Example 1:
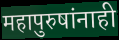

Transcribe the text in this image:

महापुरुषांनाही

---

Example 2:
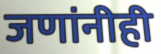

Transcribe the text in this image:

जणांनीही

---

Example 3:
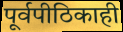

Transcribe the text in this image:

पूर्वपीठिकाही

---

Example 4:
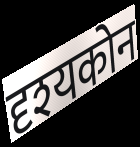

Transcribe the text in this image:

दृश्‍यकोन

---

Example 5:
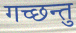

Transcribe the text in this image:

गच्छन्तु